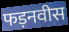
फड़नवीस